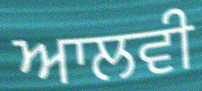
ਆਲਵੀ